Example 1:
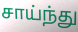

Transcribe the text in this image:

சாய்ந்து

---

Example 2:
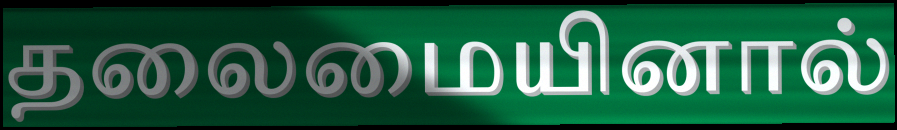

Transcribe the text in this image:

தலைமையினால்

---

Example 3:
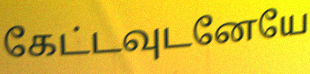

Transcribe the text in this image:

கேட்டவுடனேயே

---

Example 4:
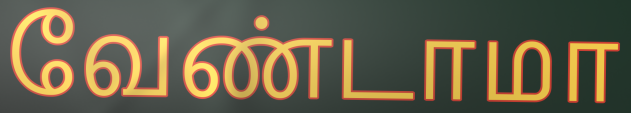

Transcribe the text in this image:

வேண்டாமா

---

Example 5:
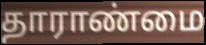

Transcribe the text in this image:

தாராண்மை